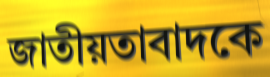
জাতীয়তাবাদকে